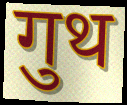
गुथ